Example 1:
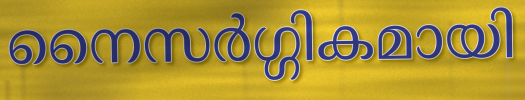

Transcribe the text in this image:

നൈസർഗ്ഗികമായി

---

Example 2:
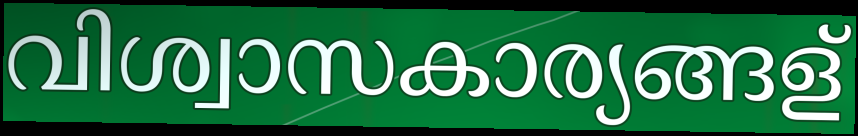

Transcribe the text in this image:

വിശ്വാസകാര്യങ്ങള്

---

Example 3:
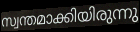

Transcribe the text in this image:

സ്വന്തമാക്കിയിരുന്നു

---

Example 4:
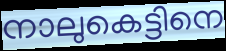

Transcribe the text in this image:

നാലുകെട്ടിനെ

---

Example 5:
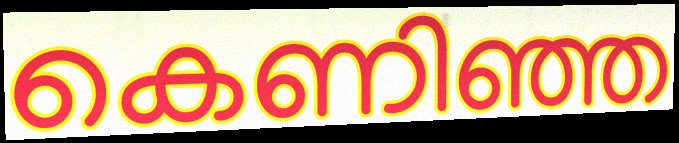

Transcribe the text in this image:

കെണിഞ്ഞ